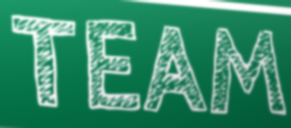
TEAM